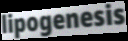
lipogenesis